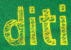
diti